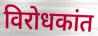
विरोधकांत